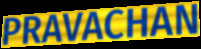
PRAVACHAN